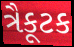
ત્રૈકૂટક